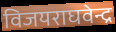
विजयराघवेन्द्र